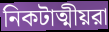
নিকটাত্মীয়রা